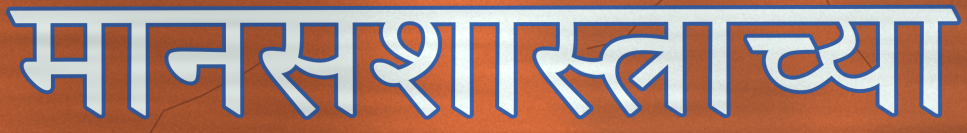
मानसशास्त्राच्या